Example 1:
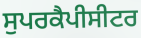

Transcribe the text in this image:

ਸੁਪਰਕੈਪੀਸੀਟਰ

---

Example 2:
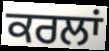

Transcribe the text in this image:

ਕਰਲਾਂ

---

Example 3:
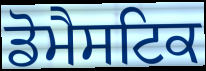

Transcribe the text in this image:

ਡੋਮੈਸਟਿਕ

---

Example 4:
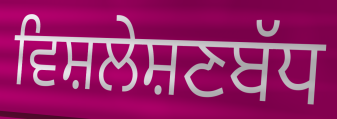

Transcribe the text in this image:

ਵਿਸ਼ਲੇਸ਼ਣਬੱਧ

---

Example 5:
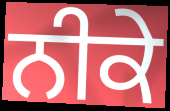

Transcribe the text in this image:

ਨੀਕੇ